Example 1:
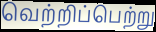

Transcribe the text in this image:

வெற்றிப்பெற்று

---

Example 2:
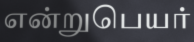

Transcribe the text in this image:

என்றுபெயர்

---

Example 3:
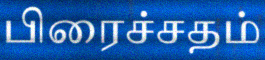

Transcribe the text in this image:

பிரைச்சதம்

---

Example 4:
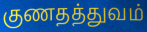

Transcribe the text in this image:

குணதத்துவம்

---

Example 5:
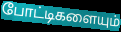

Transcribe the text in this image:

போட்டிகளையும்